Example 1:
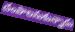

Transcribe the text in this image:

చంపాలనుకున్నాడు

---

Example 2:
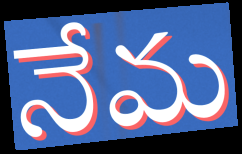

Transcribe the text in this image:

నేమ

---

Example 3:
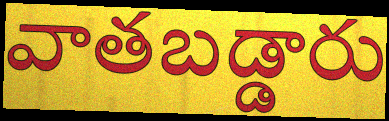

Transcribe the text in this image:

వాతబడ్డారు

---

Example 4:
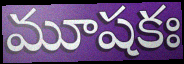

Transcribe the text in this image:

మూషకః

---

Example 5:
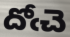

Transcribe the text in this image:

దోఁచె